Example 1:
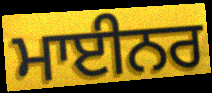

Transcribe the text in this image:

ਮਾਈਨਰ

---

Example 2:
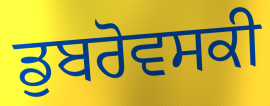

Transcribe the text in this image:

ਡੁਬਰੋਵਸਕੀ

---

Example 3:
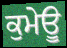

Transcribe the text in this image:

ਕੁਮੇਊ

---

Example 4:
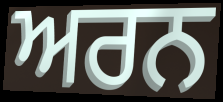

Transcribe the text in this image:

ਅਰਨ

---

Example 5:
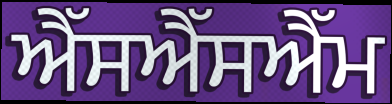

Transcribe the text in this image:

ਐੱਸਐੱਸਐੱਮ